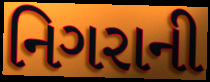
નિગરાની